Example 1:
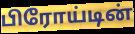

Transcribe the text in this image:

பிரோய்டின்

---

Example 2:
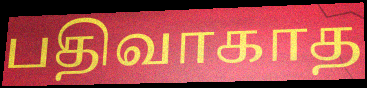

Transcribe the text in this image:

பதிவாகாத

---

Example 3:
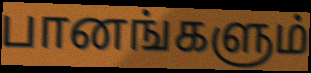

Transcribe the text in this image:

பானங்களும்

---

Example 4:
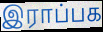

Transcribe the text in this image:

இராப்பக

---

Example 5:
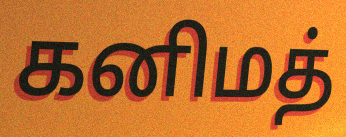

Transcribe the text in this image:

கனிமத்